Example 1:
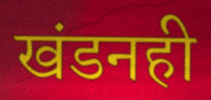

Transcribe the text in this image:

खंडनही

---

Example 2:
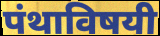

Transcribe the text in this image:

पंथाविषयी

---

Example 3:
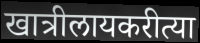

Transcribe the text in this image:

खात्रीलायकरीत्या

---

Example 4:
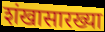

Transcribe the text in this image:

शंखासारख्या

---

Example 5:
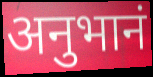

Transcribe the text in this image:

अनुभानं